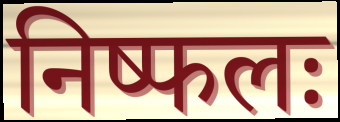
निष्फलः